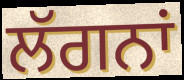
ਲੱਗਨਾਂ